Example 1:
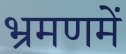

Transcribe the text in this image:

भ्रमणमें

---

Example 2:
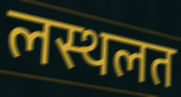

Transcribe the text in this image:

लस्थलत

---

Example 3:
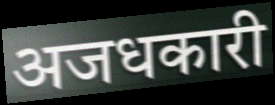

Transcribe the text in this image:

अजधकारी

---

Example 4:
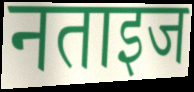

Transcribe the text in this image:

नताइज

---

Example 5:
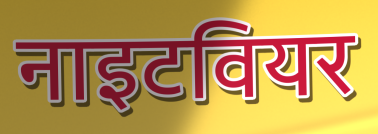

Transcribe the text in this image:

नाइटवियर